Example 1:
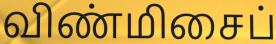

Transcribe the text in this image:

விண்மிசைப்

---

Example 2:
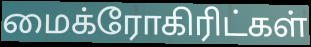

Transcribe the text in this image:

மைக்ரோகிரிட்கள்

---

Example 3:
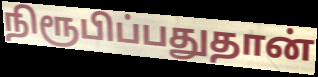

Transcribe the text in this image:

நிரூபிப்பதுதான்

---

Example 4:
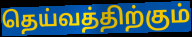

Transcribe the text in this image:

தெய்வத்திற்கும்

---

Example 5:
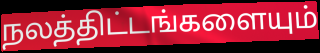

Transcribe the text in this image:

நலத்திட்டங்களையும்